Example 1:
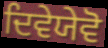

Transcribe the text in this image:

ਦਿਵੇਯੇਵੋ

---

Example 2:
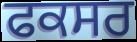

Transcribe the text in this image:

ਫਕਸਰ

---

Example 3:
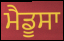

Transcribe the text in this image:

ਮੈਡੂਸਾ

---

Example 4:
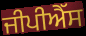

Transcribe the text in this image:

ਜੀਪੀਐੱਸ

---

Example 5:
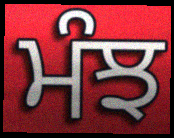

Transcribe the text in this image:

ਮੰਝ